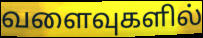
வளைவுகளில்